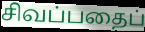
சிவப்பதைப்